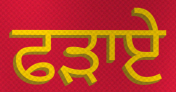
ਫੜਾਏ